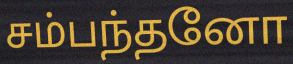
சம்பந்தனோ